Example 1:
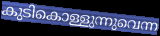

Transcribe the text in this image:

കുടികൊള്ളുന്നുവെന്ന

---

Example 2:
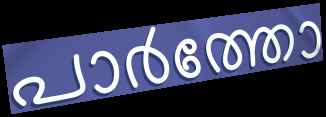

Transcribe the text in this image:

പാർത്തോ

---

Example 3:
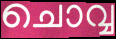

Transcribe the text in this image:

ചൊവ്വ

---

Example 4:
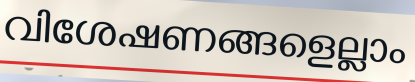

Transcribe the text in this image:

വിശേഷണങ്ങളെല്ലാം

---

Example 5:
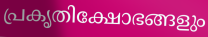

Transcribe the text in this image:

പ്രകൃതിക്ഷോഭങ്ങളും